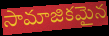
సామాజికమైన